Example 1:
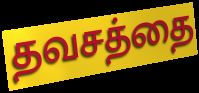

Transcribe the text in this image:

தவசத்தை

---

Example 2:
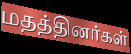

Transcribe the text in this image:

மதத்தினர்கள்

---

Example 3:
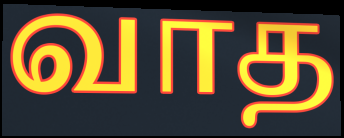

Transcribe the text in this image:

வாத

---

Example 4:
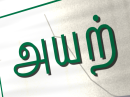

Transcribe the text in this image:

அயற்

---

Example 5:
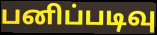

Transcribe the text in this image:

பனிப்படிவு